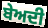
ਬੇਅਦੀ